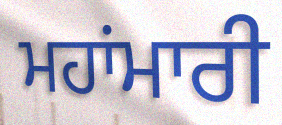
ਮਹਾਂਮਾਰੀ